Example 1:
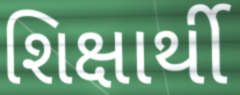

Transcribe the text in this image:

શિક્ષાર્થી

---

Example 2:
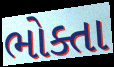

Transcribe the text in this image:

ભોક્તા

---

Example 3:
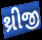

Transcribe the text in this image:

થ્રીજી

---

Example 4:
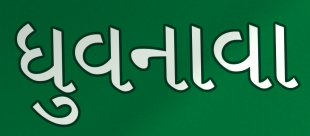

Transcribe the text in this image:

ધુવનાવા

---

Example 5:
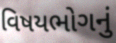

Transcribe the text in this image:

વિષયભોગનું